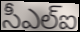
సీఎల్ఐ